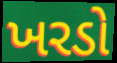
ખરડો